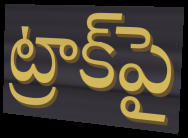
ట్రాక్‌పై